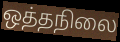
ஒத்தநிலை